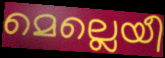
മെല്ലെയീ